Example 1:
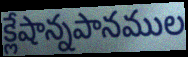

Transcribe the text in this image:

క్లేషాన్నపానముల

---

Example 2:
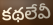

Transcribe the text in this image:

కథలేవీ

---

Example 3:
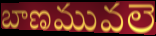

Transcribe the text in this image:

బాణమువలె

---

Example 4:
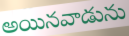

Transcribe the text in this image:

అయినవాడును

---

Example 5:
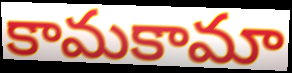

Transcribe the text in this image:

కామకామా